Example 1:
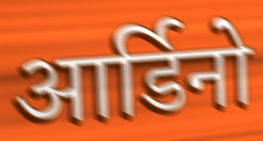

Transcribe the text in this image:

आर्डिनो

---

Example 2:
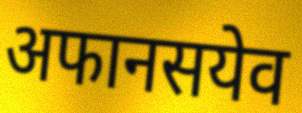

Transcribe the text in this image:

अफानसयेव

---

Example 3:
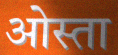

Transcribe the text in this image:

ओस्ता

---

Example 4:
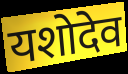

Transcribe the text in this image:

यशोदेव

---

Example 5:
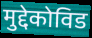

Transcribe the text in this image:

मुद्देकोविड